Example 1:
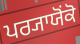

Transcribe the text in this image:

ਪਰ੍ਯਾਯੋਂਕੋ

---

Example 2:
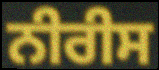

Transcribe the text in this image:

ਨੀਰੀਸ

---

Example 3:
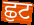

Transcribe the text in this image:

ਛੁਟ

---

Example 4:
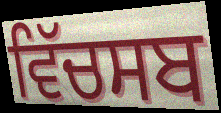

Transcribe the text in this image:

ਵਿੱਚਸਬ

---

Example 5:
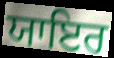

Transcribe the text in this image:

ਯਾਇਰ